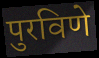
पुरविणे